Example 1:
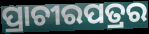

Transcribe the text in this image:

ପ୍ରାଚୀରପତ୍ରର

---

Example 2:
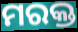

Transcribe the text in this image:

ମରକ୍ତ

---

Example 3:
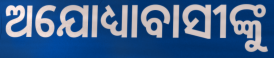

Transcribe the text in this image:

ଅଯୋଧ୍ୟାବାସୀଙ୍କୁ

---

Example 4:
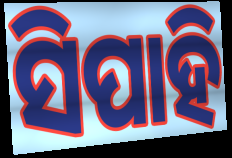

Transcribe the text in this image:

ସିପାହି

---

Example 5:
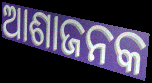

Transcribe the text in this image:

ଆଶାଜନକ